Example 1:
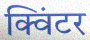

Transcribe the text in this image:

क्विंटर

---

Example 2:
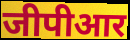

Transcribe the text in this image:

जीपीआर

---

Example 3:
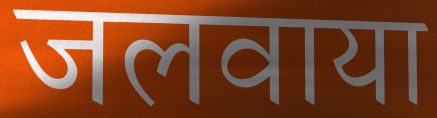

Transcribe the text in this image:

जलवाया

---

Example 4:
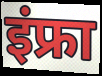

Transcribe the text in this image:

इंफ्रा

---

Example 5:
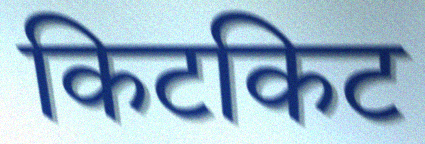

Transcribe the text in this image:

किटकिट